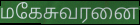
மகேசுவரனை